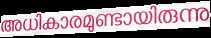
അധികാരമുണ്ടായിരുന്നു